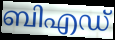
ബിഎഡ്